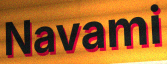
Navami